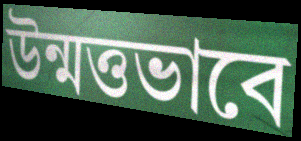
উন্মত্তভাবে